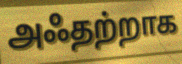
அஃதற்றாக